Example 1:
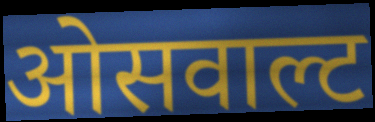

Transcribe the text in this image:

ओसवाल्ट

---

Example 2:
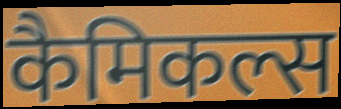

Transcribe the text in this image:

कैमिकल्स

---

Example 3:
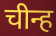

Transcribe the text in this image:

चीन्ह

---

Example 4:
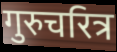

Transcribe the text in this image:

गुरुचरित्र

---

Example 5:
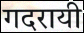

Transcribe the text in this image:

गदरायी